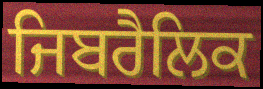
ਜਿਬਰੈਲਿਕ